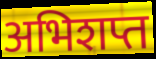
अभिशप्त